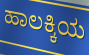
ಹಾಲಕ್ಕಿಯ